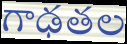
గాఢతల